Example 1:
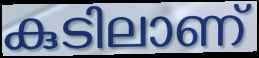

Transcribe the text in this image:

കുടിലാണ്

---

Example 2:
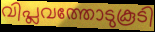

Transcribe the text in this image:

വിപ്ലവത്തോടുകൂടി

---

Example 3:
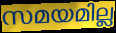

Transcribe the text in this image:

സമയമില്ല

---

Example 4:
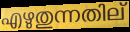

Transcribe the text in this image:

എഴുതുന്നതില്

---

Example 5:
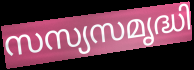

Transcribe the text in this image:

സസ്യസമൃദ്ധി